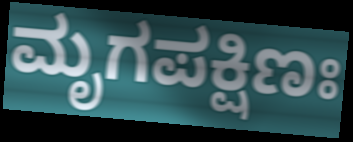
ಮೃಗಪಕ್ಷಿಣಃ